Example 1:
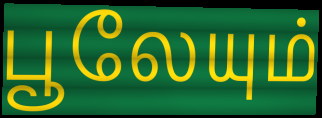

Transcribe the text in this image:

பூலேயும்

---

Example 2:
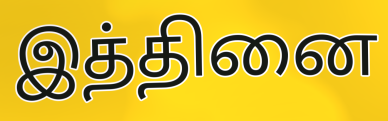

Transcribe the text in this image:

இத்தினை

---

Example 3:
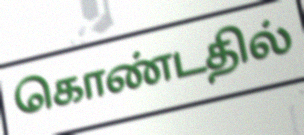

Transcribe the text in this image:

கொண்டதில்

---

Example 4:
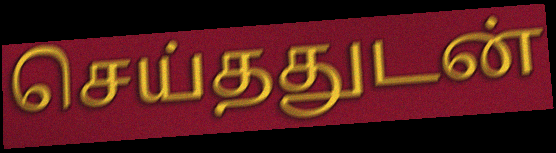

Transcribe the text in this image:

செய்ததுடன்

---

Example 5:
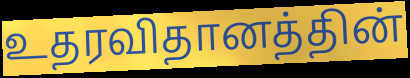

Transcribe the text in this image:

உதரவிதானத்தின்